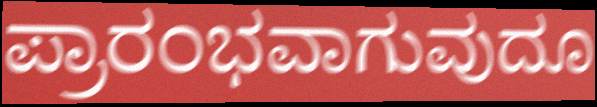
ಪ್ರಾರಂಭವಾಗುವುದೂ